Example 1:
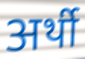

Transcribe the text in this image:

अर्थी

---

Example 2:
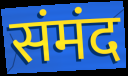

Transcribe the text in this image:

संमंद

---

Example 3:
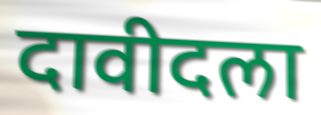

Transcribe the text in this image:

दावीदला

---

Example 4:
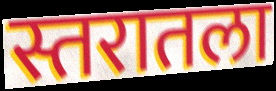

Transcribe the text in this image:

स्तरातला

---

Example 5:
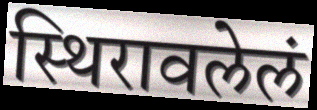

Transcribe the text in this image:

स्थिरावलेलं